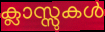
ക്ലാസ്സുകൾ